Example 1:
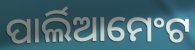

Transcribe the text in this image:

ପାର୍ଲିଆମେଂଟ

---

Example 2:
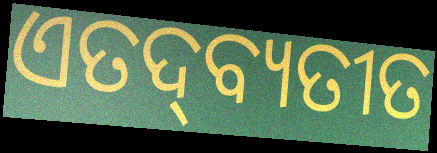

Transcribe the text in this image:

ଏତଦ୍‍ବ୍ୟତୀତ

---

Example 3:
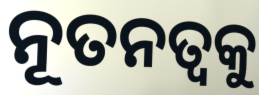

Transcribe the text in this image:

ନୂତନତ୍ବକୁ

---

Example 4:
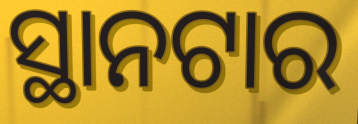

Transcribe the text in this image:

ସ୍ଥାନଟାର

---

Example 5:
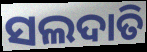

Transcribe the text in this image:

ସଲଦାତି